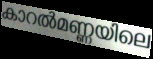
കാറൽമണ്ണയിലെ